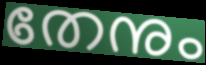
തേനും